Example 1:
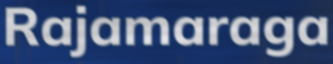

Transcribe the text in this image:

Rajamaraga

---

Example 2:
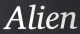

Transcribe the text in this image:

Alien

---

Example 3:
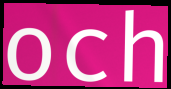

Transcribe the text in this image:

och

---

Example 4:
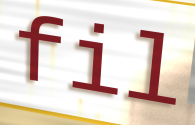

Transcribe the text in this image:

fil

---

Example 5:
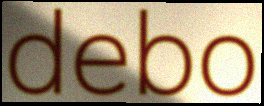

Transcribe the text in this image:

debo